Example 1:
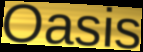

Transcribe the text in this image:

Oasis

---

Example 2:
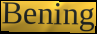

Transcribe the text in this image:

Bening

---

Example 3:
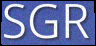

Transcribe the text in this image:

SGR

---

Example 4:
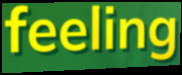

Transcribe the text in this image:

feeling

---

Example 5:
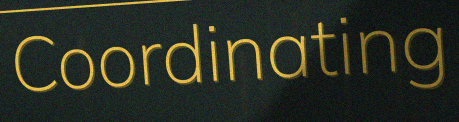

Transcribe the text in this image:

Coordinating